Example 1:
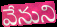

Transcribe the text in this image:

వేనుని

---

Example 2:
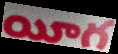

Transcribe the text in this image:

యీగ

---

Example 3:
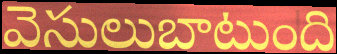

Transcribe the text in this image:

వెసులుబాటుంది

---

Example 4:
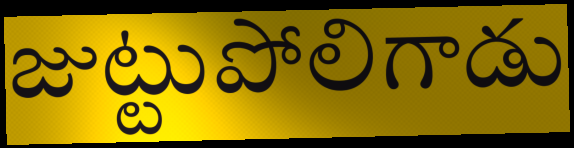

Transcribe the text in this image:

జుట్టుపోలిగాడు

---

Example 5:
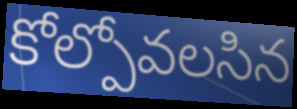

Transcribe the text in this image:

కోల్పోవలసిన